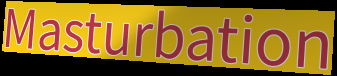
Masturbation